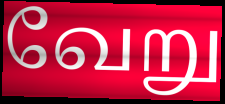
வேறு